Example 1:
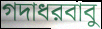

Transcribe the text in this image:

গদাধরবাবু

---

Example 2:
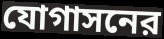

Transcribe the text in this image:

যোগাসনের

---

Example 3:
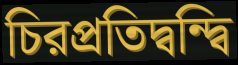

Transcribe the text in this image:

চিরপ্রতিদ্বন্দ্বি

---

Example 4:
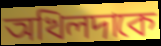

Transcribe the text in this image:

অখিলদাকে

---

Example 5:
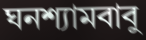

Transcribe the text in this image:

ঘনশ্যামবাবু